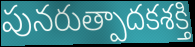
పునరుత్పాదకశక్తి